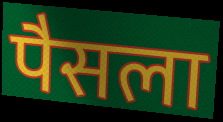
पैसला